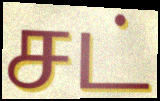
சட்